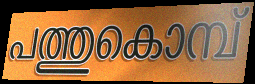
പത്തുകൊമ്പ്